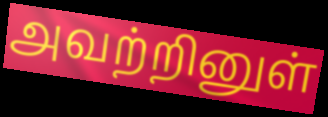
அவற்றினுள்